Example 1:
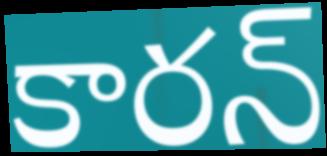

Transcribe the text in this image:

కారన్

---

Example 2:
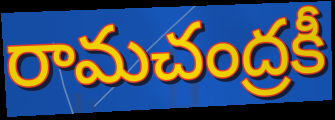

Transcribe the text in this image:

రామచంద్రకీ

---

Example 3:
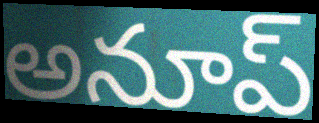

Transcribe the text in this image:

అనూప్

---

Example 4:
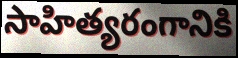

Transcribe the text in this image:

సాహిత్యరంగానికి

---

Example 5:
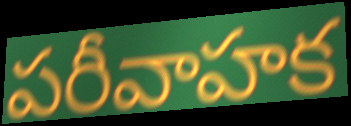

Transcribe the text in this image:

పరీవాహక